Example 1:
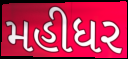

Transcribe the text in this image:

મહીધર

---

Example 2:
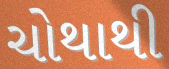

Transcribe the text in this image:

ચોથાથી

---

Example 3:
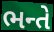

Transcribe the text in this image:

ભન્તે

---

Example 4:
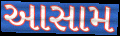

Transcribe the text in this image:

આસામ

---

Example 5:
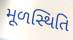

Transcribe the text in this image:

મૂળસ્થિતિ